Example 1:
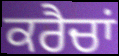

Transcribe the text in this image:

ਕਰੈਚਾਂ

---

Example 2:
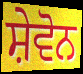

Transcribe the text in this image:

ਸ਼ੇਵੋਨ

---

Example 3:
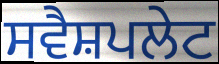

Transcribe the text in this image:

ਸਵੈਸ਼ਪਲੇਟ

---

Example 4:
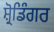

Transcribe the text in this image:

ਸ਼੍ਰੋਡਿੰਗਰ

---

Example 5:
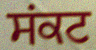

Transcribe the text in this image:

ਸਂਕਟ